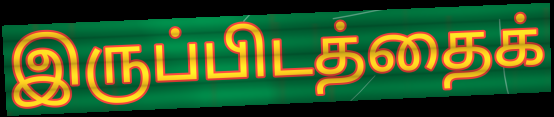
இருப்பிடத்தைக்